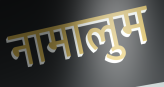
नामालुम